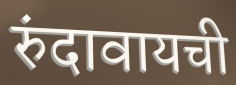
रुंदावायची